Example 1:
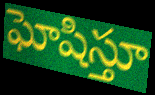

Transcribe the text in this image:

ఘోషిస్తూ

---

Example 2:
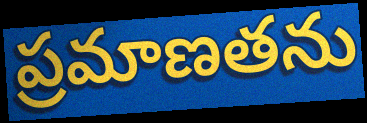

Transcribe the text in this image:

ప్రమాణతను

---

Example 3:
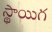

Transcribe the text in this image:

స్థాయిగ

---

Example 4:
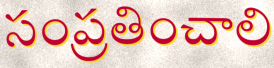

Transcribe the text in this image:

సంప్రతించాలి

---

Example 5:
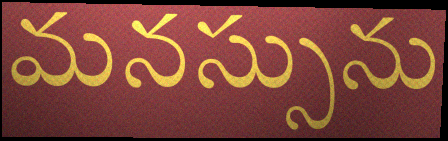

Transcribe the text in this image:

మనస్సును